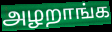
அழறாங்க